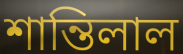
শান্তিলাল